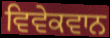
ਵਿਵੇਕਵਾਨ